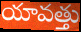
యావత్తు